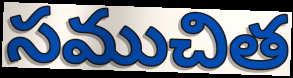
సముచిత